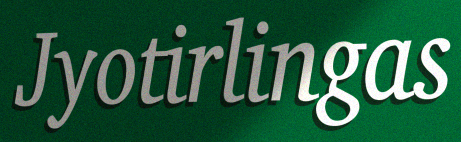
Jyotirlingas